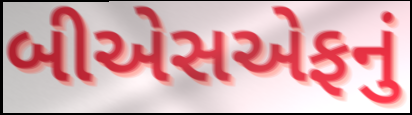
બીએસએફનું